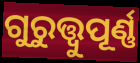
ଗୁରୁତ୍ତ୍ୱୁପୂର୍ଣ୍ଣ